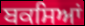
ਬਕਸਿਆਂ